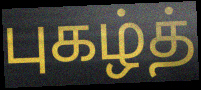
புகழ்த்